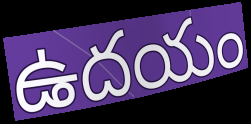
ఉదయం